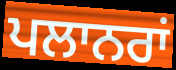
ਪਲਾਨਰਾਂ